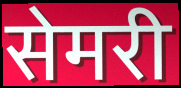
सेमरी